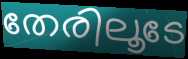
തേരിലൂടേ